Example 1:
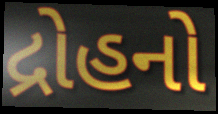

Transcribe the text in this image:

દ્રોહનો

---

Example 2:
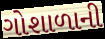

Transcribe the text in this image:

ગોશાળાની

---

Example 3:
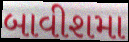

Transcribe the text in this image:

બાવીશમા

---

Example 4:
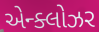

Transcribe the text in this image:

એન્ક્લોઝર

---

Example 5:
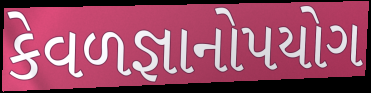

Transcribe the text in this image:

કેવળજ્ઞાનોપયોગ